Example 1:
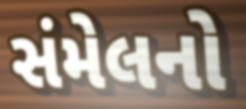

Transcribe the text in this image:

સંમેલનો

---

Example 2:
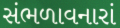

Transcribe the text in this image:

સંભળાવનારાં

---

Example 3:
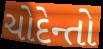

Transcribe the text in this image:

ચોદેન્તો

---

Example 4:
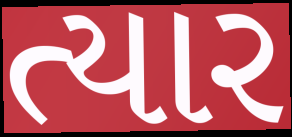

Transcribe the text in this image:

ત્‍યાર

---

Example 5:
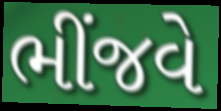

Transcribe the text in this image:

ભીંજવે